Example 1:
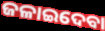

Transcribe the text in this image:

ଜଳାଇଦେବା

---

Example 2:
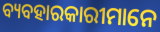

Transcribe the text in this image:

ବ୍ୟବହାରକାରୀମାନେ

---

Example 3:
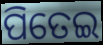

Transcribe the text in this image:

ପିତେଇ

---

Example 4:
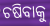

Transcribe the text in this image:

ଚଷିବାକୁ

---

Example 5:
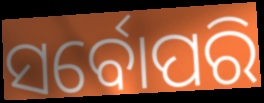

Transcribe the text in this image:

ସର୍ବୋପରି